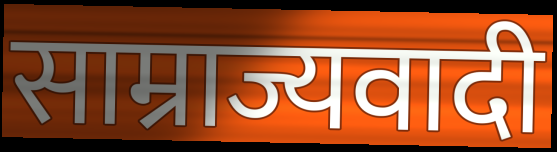
साम्राज्यवादी